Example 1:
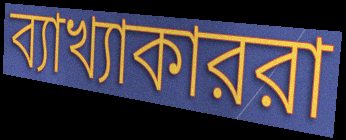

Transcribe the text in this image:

ব্যাখ্যাকাররা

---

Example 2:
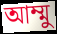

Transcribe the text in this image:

আম্মু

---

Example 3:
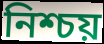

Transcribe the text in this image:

নিশ্চয়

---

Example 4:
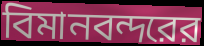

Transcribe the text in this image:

বিমানবন্দরের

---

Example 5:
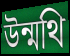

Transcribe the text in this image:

উন্মথি